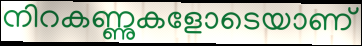
നിറകണ്ണുകളോടെയാണ്